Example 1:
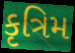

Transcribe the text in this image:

કૃત્રિમ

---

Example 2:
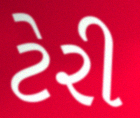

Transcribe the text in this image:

ટેરી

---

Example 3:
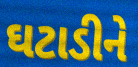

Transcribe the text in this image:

ઘટાડીને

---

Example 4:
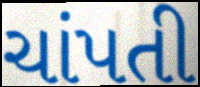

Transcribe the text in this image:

ચાંપતી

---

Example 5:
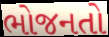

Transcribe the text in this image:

ભોજનતો